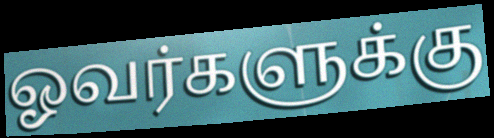
ஓவர்களுக்கு